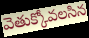
వెతుక్కోవలసిన